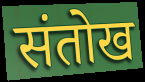
संतोख